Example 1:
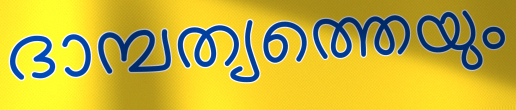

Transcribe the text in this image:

ദാമ്പത്യത്തെയും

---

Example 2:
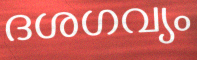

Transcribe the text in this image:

ദശഗവ്യം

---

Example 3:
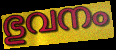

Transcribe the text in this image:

ഭുവനം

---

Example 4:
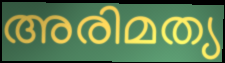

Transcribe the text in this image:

അരിമത്യ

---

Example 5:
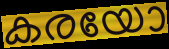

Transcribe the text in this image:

കരയോ